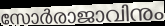
സോർരാജാവിനും